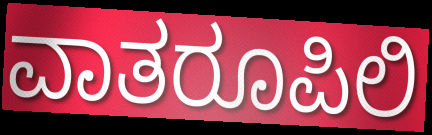
ವಾತರೂಪಿಲಿ